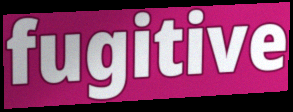
fugitive